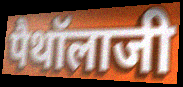
पैथॉलाजी